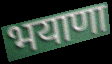
भयाणा